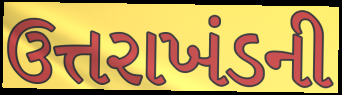
ઉત્તરાખંડની